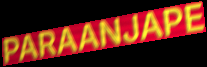
PARAANJAPE